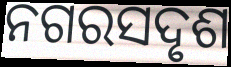
ନଗରସଦୃଶ